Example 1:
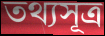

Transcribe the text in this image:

তথ্যসূত্র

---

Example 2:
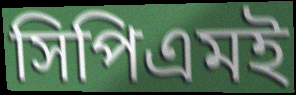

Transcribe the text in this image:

সিপিএমই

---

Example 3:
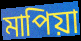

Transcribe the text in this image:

মাপিয়া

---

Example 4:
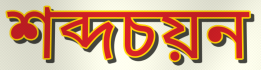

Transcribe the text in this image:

শব্দচয়ন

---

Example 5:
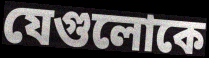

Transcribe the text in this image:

যেগুলোকে